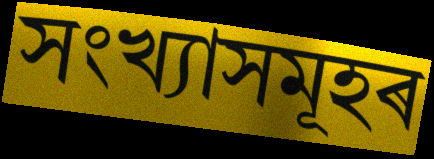
সংখ্যাসমূহৰ